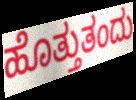
ಹೊತ್ತುತಂದು